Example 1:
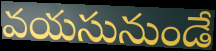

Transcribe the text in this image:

వయసునుండే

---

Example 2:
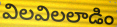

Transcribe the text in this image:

విలవిలలాడిం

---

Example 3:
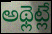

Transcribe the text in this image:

అథ్లెట్లే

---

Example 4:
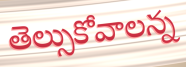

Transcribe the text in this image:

తెల్సుకోవాలన్న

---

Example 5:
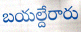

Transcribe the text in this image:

బయల్దేరారు